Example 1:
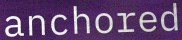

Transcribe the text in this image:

anchored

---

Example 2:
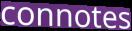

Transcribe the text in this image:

connotes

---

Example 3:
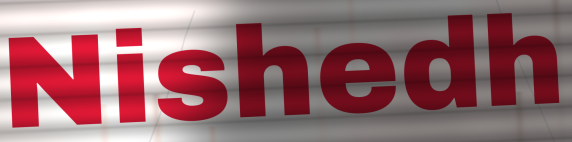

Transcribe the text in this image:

Nishedh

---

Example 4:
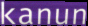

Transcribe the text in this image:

kanun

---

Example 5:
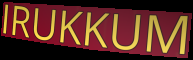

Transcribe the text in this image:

IRUKKUM